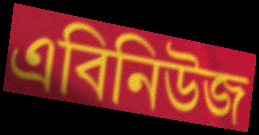
এবিনিউজ